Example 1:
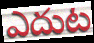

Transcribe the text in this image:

ఎదుట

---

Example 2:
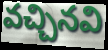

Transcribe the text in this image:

వచ్చినవి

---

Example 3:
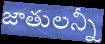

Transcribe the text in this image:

జాతులన్నీ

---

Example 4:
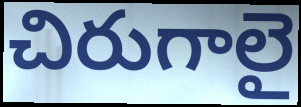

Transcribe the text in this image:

చిరుగాలై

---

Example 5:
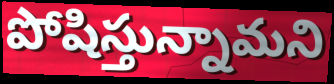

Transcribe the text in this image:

పోషిస్తున్నామని